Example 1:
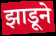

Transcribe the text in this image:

झाडूने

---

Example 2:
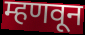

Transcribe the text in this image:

म्हणवून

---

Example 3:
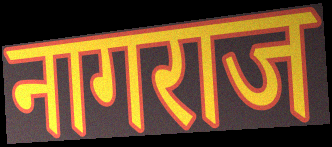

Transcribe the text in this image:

नागराज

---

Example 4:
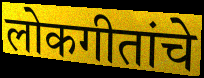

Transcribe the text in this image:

लोकगीतांचे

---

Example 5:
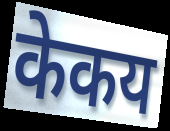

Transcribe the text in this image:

केकय